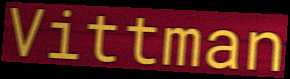
Vittman